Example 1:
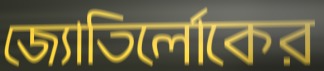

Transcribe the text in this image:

জ্যোতির্লোকের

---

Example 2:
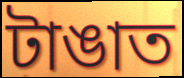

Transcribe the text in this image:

টাঙাত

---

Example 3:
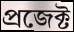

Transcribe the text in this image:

প্রজেক্ট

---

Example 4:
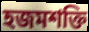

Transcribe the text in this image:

হজমশক্তি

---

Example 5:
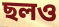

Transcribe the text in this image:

ছলও